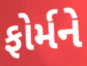
ફોર્મને